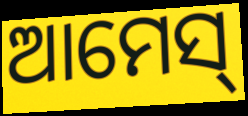
ଆମେସ୍